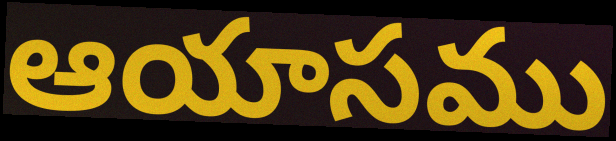
ఆయాసము